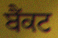
ਬੈਂਕਟ